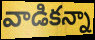
వాడికన్నా